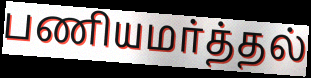
பணியமர்த்தல்